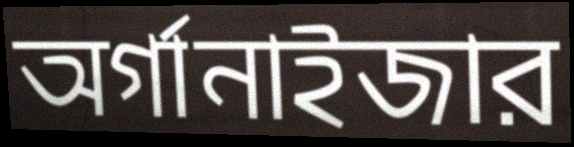
অর্গানাইজার